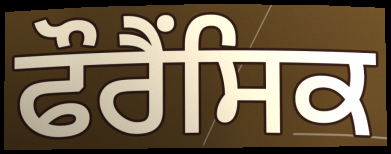
ਫੌਰੈਂਸਿਕ